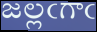
జల్లఁగాఁ